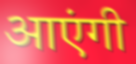
आएंगी